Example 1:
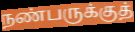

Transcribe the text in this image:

நண்பருக்குத்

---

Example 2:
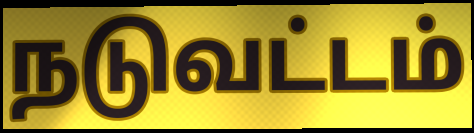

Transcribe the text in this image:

நடுவட்டம்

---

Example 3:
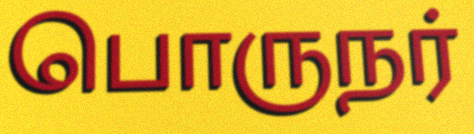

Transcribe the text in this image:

பொருநர்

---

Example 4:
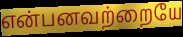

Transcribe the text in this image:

என்பனவற்றையே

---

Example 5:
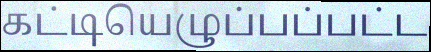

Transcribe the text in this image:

கட்டியெழுப்பப்பட்ட